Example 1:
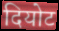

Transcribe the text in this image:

दियोट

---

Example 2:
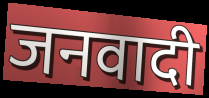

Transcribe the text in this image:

जनवादी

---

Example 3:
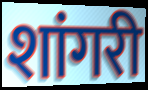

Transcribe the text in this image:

शांगरी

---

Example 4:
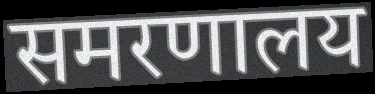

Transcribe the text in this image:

समरणालय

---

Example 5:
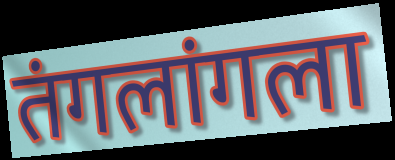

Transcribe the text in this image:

तंगलांगला